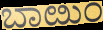
ಬಾೞುಂ